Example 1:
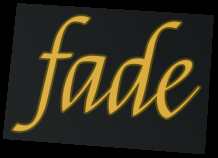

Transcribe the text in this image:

fade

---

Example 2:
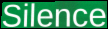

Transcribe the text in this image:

Silence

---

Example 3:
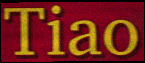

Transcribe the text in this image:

Tiao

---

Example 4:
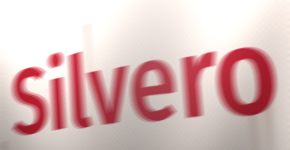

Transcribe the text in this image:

Silvero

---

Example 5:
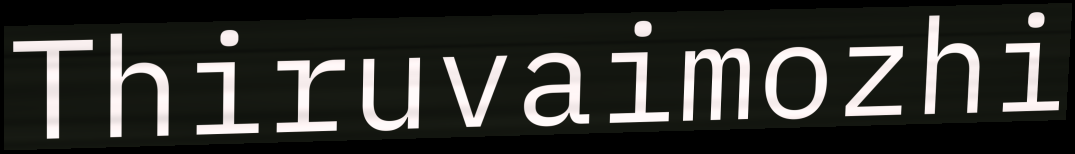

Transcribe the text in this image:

Thiruvaimozhi